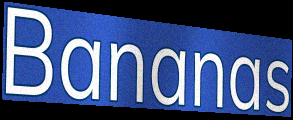
Bananas